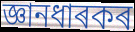
জ্ঞানধাৰকৰ